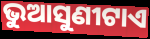
ଭୁଆସୁଣୀଟାଏ